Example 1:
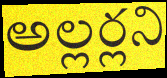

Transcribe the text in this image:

అల్లర్లని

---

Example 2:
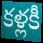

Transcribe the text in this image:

కళ్లకీ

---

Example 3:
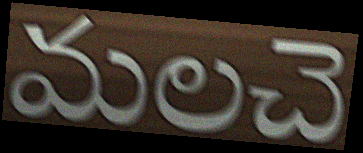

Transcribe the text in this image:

మలచె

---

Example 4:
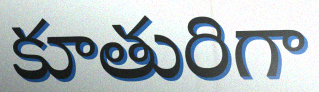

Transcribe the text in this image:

కూతురిగా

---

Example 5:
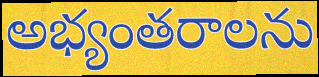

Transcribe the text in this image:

అభ్యంతరాలను